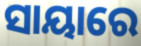
ସାୟାରେ